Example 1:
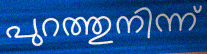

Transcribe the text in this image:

പുറത്തുനിന്ന്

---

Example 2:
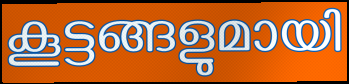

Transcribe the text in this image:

കൂട്ടങ്ങളുമായി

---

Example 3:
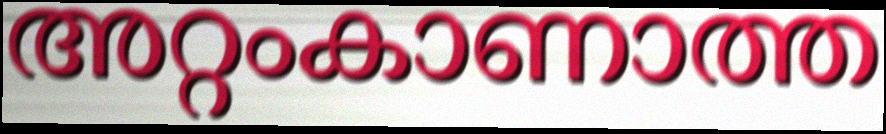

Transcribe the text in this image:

അറ്റംകാണാത്ത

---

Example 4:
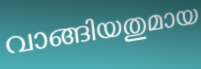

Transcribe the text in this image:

വാങ്ങിയതുമായ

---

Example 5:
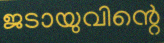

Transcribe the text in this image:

ജടായുവിന്റെ